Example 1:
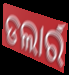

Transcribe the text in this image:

ଡଲାର୍ର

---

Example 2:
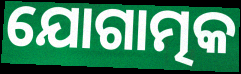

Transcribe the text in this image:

ଯୋଗାତ୍ମକ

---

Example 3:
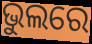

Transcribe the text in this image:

ଭୁଲରେ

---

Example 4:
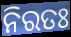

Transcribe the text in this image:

ନିରତଃ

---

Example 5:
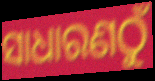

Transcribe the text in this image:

ସାଧାରଣଠୁଁ